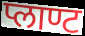
प्लाण्ट